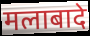
मलाबादे